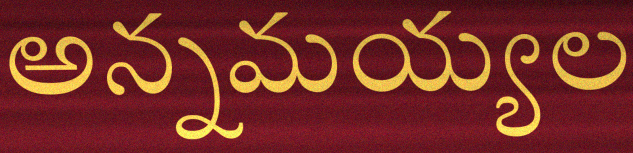
అన్నమయ్యల